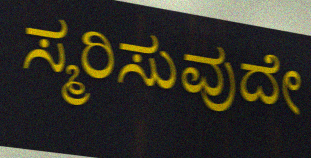
ಸ್ಮರಿಸುವುದೇ